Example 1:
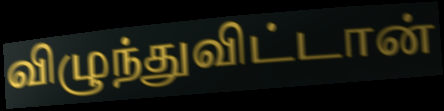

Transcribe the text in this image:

விழுந்துவிட்டான்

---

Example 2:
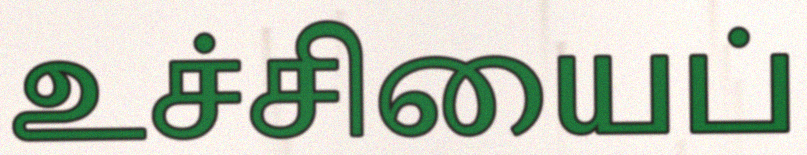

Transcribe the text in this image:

உச்சியைப்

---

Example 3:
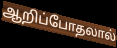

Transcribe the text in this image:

ஆறிப்போதலால்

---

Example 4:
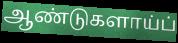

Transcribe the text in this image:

ஆண்டுகளாய்ப்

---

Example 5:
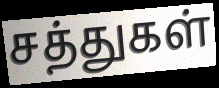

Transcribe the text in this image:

சத்துகள்